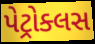
પેટ્રોક્લસ